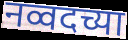
नव्वदच्या